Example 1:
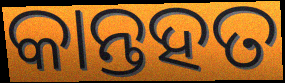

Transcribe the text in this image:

କାନ୍ତହତ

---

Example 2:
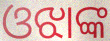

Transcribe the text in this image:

ଓଝାଙ୍କ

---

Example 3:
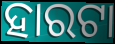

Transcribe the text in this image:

ହାରଟା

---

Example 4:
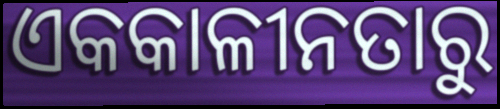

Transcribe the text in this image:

ଏକକାଳୀନତାରୁ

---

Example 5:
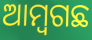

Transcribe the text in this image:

ଆମ୍ବଗଛ